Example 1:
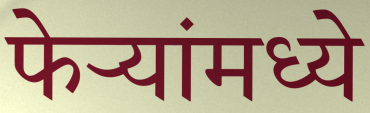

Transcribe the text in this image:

फेऱ्यांमध्ये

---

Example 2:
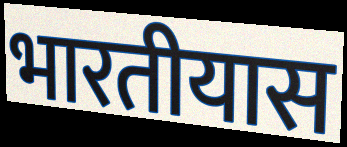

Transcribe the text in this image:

भारतीयास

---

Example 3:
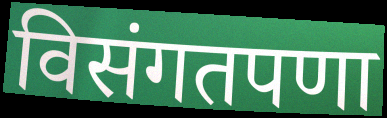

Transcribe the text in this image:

विसंगतपणा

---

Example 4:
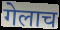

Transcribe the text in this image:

गेलाच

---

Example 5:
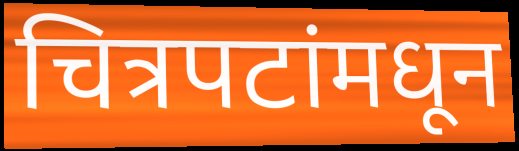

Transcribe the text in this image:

चित्रपटांमधून